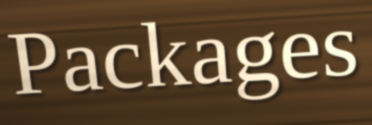
Packages